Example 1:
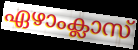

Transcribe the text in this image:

ഏഴാംക്ലാസ്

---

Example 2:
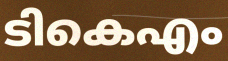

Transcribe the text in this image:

ടികെഎം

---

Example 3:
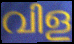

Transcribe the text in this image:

വിള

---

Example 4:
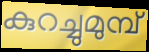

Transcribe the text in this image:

കുറച്ചുമുമ്പ്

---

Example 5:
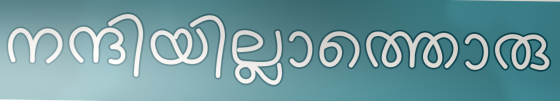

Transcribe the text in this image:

നന്ദിയില്ലാത്തൊരു